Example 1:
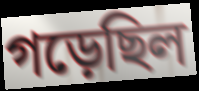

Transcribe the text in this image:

গড়েছিল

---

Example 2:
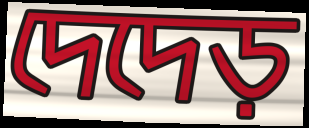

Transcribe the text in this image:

দেদেড়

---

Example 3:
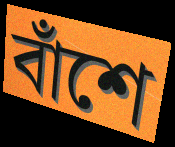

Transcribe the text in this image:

বাঁশে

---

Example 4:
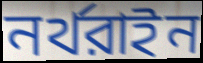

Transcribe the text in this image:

নর্থরাইন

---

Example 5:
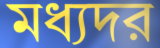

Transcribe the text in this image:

মধ্যদর